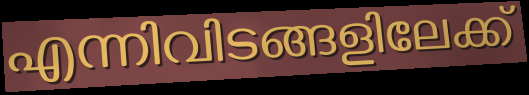
എന്നിവിടങ്ങളിലേക്ക്